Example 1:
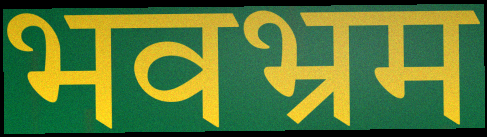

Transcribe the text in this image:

भवभ्रम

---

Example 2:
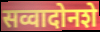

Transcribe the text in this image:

सव्वादोनशे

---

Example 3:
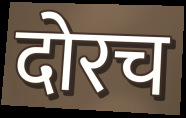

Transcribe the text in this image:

दोरच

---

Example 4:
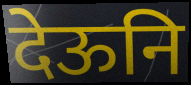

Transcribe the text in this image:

देऊनि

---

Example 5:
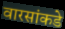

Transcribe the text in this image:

वारसांकडे